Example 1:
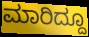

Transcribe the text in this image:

ಮಾರಿದ್ದೂ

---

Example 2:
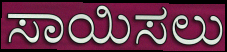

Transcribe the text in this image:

ಸಾಯಿಸಲು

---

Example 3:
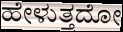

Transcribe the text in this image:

ಹೇಳುತ್ತದೋ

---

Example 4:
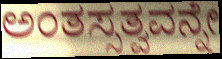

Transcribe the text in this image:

ಅಂತಸ್ಸತ್ವವನ್ನೇ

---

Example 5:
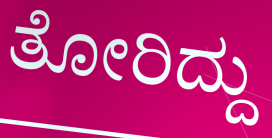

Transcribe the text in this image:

ತೋರಿದ್ದು